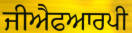
ਜੀਐਫਆਰਪੀ